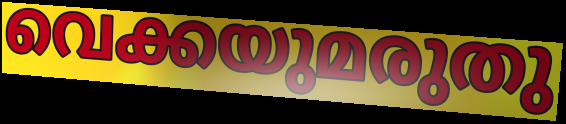
വെക്കയുമരുതു